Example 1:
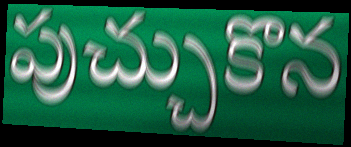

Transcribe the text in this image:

పుచ్చుకొన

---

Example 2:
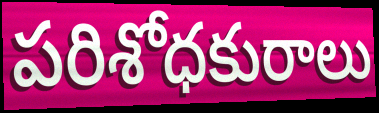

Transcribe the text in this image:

పరిశోధకురాలు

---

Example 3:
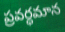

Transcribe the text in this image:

ప్రవర్ధమాన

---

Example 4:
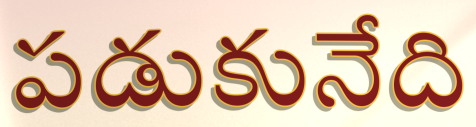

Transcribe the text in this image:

పడుకునేది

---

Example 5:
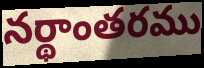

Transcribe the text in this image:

నర్థాంతరము